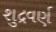
શુદ્રવર્ણ